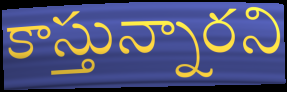
కాస్తున్నారని